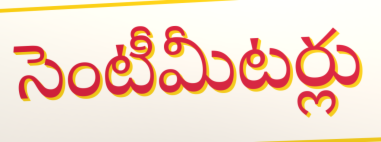
సెంటీమీటర్లు